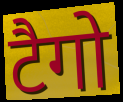
टैगो